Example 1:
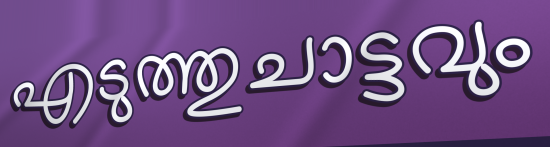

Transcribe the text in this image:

എടുത്തുചാട്ടവും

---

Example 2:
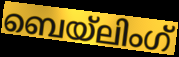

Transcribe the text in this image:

ബെയ്ലിംഗ്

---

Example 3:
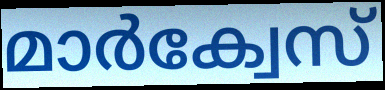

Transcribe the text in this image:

മാർക്വേസ്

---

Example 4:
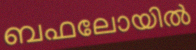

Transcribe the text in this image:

ബഫലോയിൽ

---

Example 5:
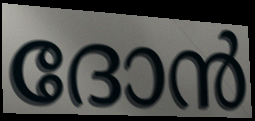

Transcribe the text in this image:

ദോൻ